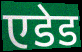
एडेड